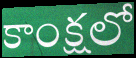
కాంక్షలో